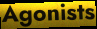
Agonists